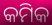
କମିକ